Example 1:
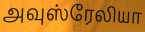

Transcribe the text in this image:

அவுஸ்ரேலியா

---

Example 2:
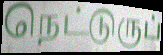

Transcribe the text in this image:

நெட்டுருப்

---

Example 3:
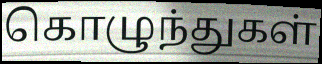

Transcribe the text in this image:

கொழுந்துகள்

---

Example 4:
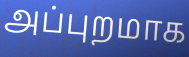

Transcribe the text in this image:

அப்புறமாக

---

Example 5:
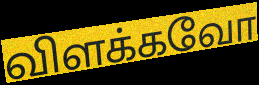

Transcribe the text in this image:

விளக்கவோ